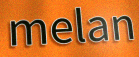
melan